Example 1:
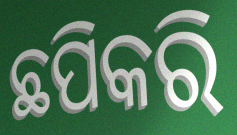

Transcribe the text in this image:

ଛପିକରି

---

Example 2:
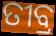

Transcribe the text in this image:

ତୀବ୍ର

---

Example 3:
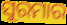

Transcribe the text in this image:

ସୁରମାର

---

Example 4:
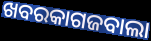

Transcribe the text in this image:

ଖବରକାଗଜବାଲା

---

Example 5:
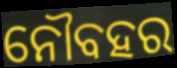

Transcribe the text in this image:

ନୌବହର